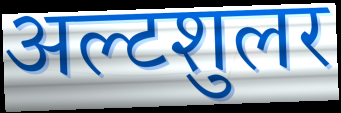
अल्टशुलर